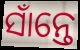
ସାଁନ୍ତେ